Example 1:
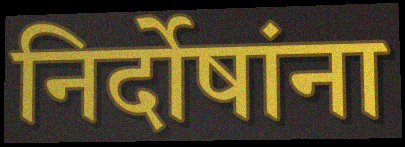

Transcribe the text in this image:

निर्दोषांना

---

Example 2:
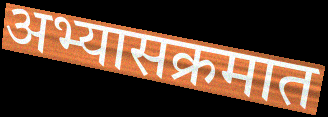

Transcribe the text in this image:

अभ्यासक्रमात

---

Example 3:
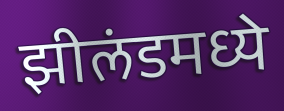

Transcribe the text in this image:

झीलंडमध्ये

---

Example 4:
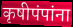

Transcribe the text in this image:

कृषीपंपांना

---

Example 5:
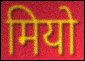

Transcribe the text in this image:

मियो